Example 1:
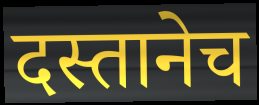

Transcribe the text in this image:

दस्तानेच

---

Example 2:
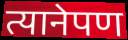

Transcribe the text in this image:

त्यानेपण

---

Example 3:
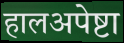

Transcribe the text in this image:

हालअपेष्टा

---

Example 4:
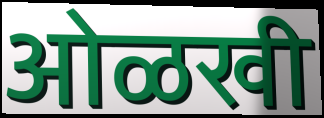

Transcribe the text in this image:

ओळखी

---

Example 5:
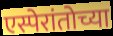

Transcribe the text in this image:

एस्पेरांतोच्या